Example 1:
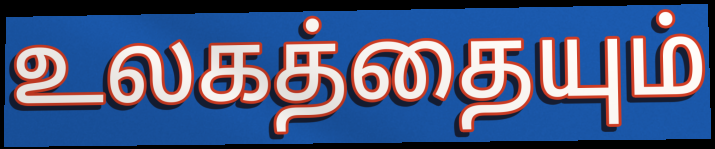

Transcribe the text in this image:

உலகத்தையும்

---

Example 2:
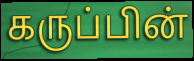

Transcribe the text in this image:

கருப்பின்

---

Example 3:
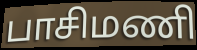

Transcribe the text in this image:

பாசிமணி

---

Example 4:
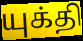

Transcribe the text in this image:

யுக்தி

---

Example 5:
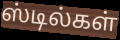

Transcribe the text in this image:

ஸ்டில்கள்